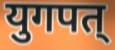
युगपत्